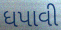
ધપાવી